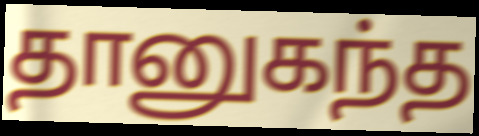
தானுகந்த